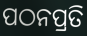
ପଠନପ୍ରତି